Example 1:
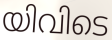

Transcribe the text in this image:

യിവിടെ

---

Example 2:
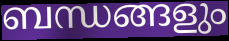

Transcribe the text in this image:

ബന്ധങ്ങളും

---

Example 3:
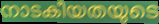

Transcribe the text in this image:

നാടകീയതയുടെ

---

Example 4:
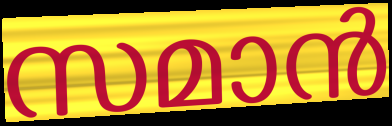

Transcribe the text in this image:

സമാൻ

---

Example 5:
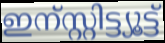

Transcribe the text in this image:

ഇന്സ്റ്റിട്ട്യൂട്ട്